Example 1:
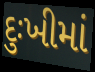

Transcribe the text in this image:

દુઃખીમાં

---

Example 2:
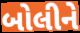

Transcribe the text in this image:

બોલીને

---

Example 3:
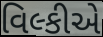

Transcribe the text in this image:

વિલ્કીએ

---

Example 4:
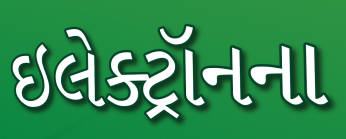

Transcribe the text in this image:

ઇલેક્ટ્રૉનના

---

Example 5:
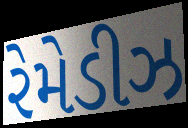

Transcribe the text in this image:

રેમેડીઝ